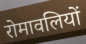
रोमावलियों